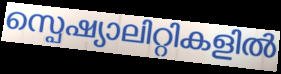
സ്പെഷ്യാലിറ്റികളിൽ